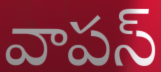
వాపస్